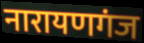
नारायणगंज